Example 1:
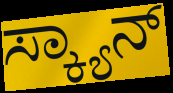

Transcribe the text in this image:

ಸ್ಕ್ಯಾನ್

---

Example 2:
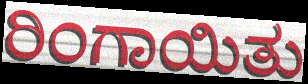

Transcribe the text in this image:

ರಿಂಗಾಯಿತು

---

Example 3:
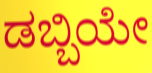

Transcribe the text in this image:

ಡಬ್ಬಿಯೇ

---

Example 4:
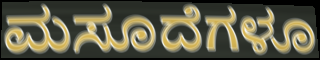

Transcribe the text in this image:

ಮಸೂದೆಗಳೂ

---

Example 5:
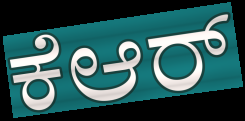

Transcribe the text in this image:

ಕೆಆರ್